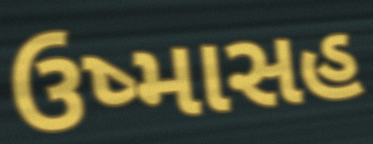
ઉષ્માસહ